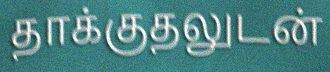
தாக்குதலுடன்